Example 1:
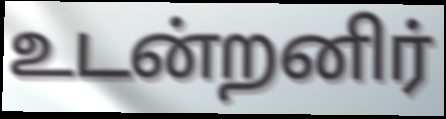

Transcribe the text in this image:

உடன்றனிர்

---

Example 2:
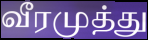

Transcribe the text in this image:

வீரமுத்து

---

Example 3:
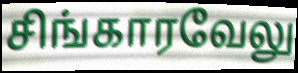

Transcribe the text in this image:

சிங்காரவேலு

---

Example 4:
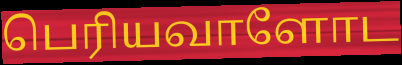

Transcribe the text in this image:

பெரியவாளோட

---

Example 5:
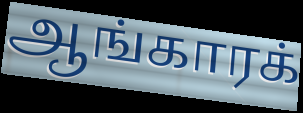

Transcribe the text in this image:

ஆங்காரக்